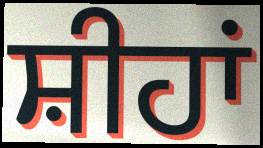
ਸ਼ੀਹਾਂ